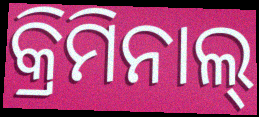
କ୍ରିମିନାଲ୍